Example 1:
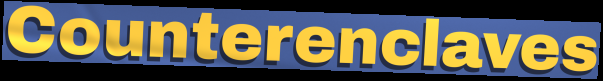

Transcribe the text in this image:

Counterenclaves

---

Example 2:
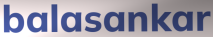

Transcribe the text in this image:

balasankar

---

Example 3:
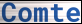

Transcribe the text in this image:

Comte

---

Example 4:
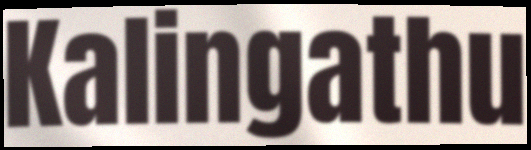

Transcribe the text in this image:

Kalingathu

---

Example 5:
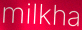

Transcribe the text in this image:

milkha